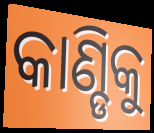
କାଣ୍ଡିକୁ